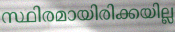
സ്ഥിരമായിരിക്കയില്ല